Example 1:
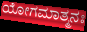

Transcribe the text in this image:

ಯೋಗಮಾತ್ಮನಃ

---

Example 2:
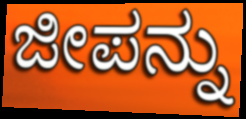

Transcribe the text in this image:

ಜೀಪನ್ನು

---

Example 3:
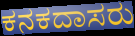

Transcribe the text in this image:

ಕನಕದಾಸರು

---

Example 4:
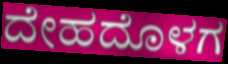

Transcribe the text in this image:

ದೇಹದೊಳಗ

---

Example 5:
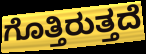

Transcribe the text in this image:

ಗೊತ್ತಿರುತ್ತದೆ